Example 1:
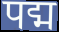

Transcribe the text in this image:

पद्म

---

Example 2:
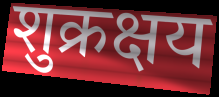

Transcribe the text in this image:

शुक्रक्षय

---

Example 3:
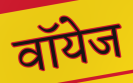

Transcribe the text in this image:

वॉयेज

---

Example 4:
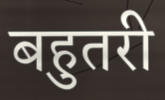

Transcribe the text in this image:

बहुतरी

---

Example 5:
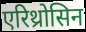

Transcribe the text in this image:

एरिथ्रोसिन